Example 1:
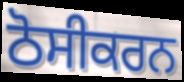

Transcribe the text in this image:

ਠੋਸੀਕਰਨ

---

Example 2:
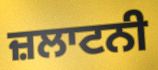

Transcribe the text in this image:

ਜ਼ਲਾਟਨੀ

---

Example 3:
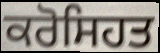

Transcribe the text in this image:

ਕਰੋਸਿਹਤ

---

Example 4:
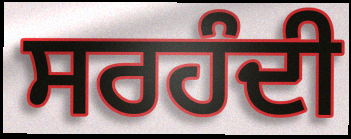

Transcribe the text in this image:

ਸਰਹੰਦੀ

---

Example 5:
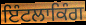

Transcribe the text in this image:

ਇੰਟਲਾਕਿੰਗ